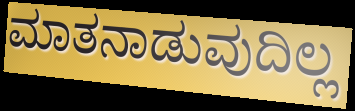
ಮಾತನಾಡುವುದಿಲ್ಲ